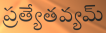
ప్రత్యేతవ్యమ్